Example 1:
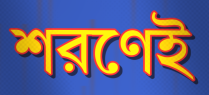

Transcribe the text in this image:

শরণেই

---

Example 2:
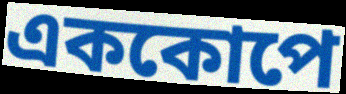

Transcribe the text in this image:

এককোপে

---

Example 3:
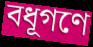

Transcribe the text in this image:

বধূগণে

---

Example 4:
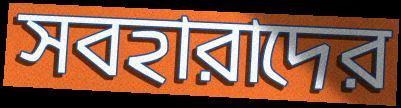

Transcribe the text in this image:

সবহারাদের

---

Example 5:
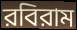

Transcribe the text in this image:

রবিরাম